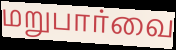
மறுபார்வை